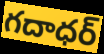
గదాధర్